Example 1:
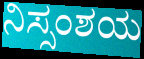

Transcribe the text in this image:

ನಿಸ್ಸಂಶಯ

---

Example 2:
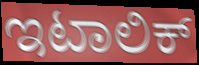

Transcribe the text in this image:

ಇಟಾಲಿಕ್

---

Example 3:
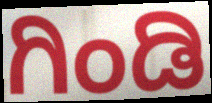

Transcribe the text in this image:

ಗಿಂಡಿ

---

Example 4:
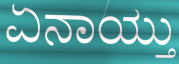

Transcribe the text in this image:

ಏನಾಯ್ತು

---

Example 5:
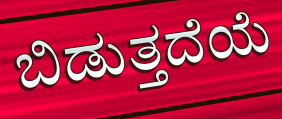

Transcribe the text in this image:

ಬಿಡುತ್ತದೆಯೆ